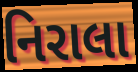
નિરાલા